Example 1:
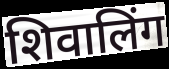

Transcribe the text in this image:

शिवालिंग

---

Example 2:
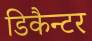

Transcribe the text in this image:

डिकैन्टर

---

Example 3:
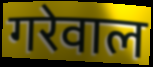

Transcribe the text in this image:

गरेवाल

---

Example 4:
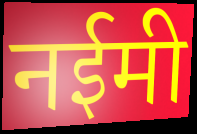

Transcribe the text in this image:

नईमी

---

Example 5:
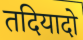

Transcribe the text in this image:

तदियादो